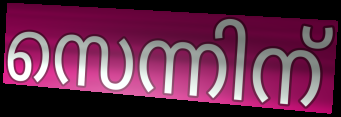
സെന്നിന്